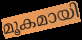
മൂകമായി